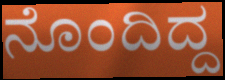
ನೊಂದಿದ್ದ